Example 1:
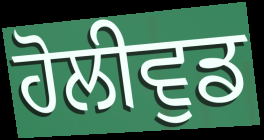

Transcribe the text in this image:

ਹੋਲੀਵੁਡ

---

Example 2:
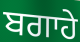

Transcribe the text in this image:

ਬਗਾਹੇ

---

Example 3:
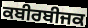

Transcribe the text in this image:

ਕਬੀਰਬੀਜਕ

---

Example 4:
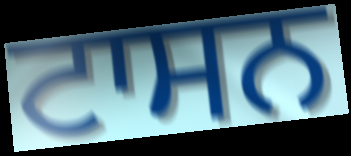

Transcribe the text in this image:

ਟਾਸਨ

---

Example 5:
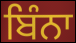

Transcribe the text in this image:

ਬਿੰਨਾ